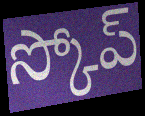
స్కోప్